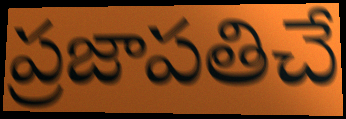
ప్రజాపతిచే